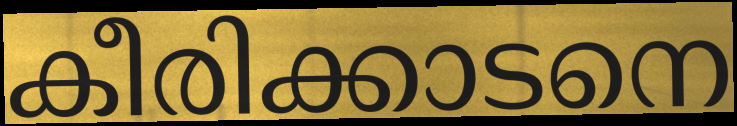
കീരിക്കാടനെ